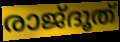
രാജ്ദൂത്